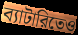
ব্যাটারিতেও